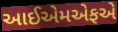
આઈએમએફએ